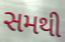
સમથી